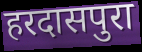
हरदासपुरा